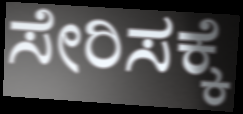
ಸೇರಿಸಕ್ಕೆ